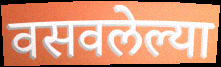
वसवलेल्या